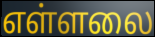
எள்ளலை